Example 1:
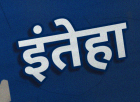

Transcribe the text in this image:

इंतेहा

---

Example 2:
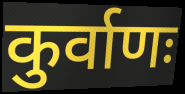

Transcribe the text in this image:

कुर्वाणः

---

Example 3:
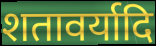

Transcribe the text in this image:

शतावर्यादि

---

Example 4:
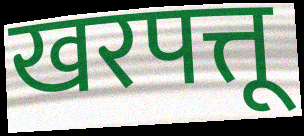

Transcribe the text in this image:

खरपत्तू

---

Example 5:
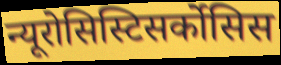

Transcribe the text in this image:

न्यूरोसिस्टिसर्कोसिस